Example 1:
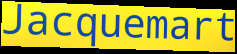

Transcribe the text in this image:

Jacquemart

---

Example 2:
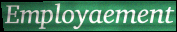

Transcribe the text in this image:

Employaement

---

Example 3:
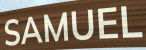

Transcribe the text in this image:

SAMUEL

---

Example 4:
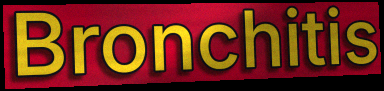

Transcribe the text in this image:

Bronchitis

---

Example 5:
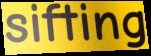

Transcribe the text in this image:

sifting